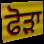
ਫੋੜਾ